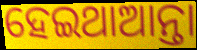
ହେଇଥାଆନ୍ତା